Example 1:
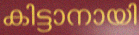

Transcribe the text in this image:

കിട്ടാനായി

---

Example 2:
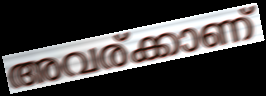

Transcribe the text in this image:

അവര്ക്കാണ്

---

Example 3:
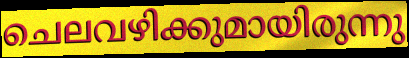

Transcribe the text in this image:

ചെലവഴിക്കുമായിരുന്നു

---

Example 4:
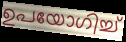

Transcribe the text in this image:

ഉപയോഗിച്ച്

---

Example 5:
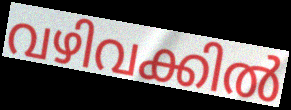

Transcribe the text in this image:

വഴിവക്കിൽ